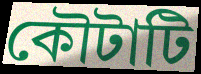
কৌটাটি